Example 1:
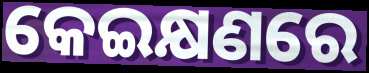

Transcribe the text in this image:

କେଇକ୍ଷଣରେ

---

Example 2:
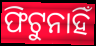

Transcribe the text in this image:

ଫିଟୁନାହିଁ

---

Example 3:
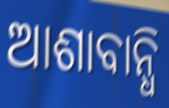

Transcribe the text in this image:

ଆଶାବାନ୍ଧି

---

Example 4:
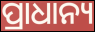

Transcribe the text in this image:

ପ୍ରାଧାନ୍ୟ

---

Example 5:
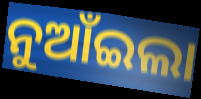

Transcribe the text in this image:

ନୁଆଁଇଲା